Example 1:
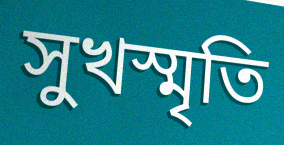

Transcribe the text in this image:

সুখস্মৃতি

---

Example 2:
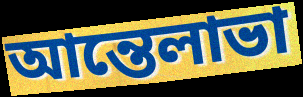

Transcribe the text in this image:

আন্তেলাভা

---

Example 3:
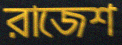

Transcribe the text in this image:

রাজেশ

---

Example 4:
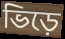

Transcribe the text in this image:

ভিড়ে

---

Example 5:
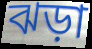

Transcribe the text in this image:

ঝড়া